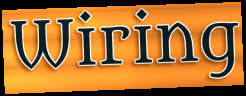
Wiring